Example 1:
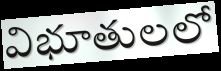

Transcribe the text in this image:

విభూతులలో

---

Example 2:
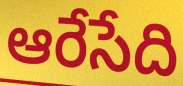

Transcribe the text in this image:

ఆరేసేది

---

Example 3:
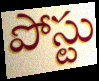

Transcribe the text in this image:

పోస్టు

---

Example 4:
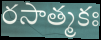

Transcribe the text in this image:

రసాత్మకః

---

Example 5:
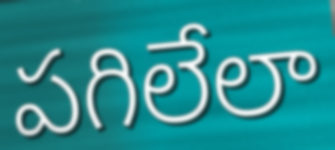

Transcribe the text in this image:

పగిలేలా